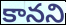
కానని